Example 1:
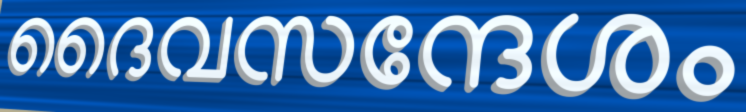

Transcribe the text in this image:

ദൈവസന്ദേശം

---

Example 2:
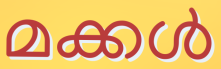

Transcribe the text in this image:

മക്കൾ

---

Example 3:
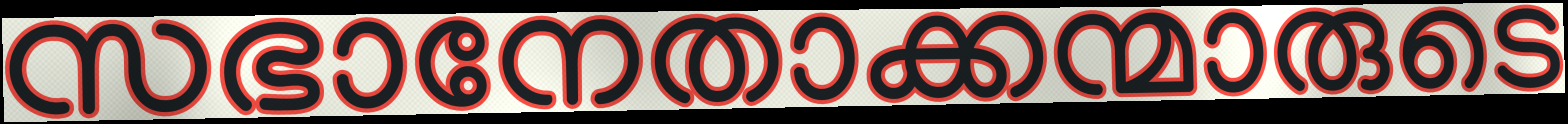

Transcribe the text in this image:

സഭാനേതാക്കന്മാരുടെ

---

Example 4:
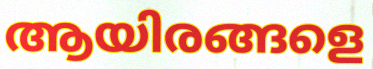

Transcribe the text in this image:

ആയിരങ്ങളെ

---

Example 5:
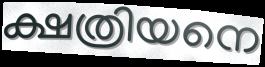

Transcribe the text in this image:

ക്ഷത്രിയനെ